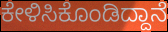
ಕೇಳಿಸಿಕೊಂಡಿದ್ದಾನೆ